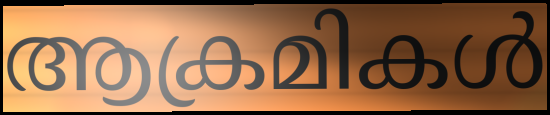
ആക്രമികൾ